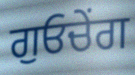
ਗੁਓਚੇਂਗ